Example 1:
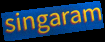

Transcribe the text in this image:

singaram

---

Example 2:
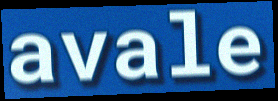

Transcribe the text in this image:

avale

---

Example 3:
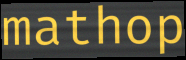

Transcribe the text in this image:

mathop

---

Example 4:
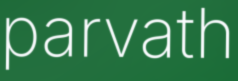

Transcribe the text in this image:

parvath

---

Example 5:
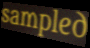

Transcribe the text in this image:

sampled